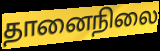
தானைநிலை